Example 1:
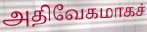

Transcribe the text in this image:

அதிவேகமாகச்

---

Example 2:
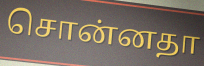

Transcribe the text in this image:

சொன்னதா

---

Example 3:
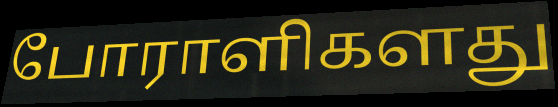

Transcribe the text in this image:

போராளிகளது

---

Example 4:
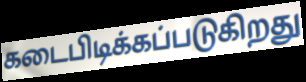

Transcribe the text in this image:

கடைபிடிக்கப்படுகிறது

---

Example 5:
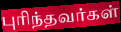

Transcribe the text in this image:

புரிந்தவர்கள்